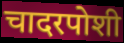
चादरपोशी